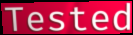
Tested